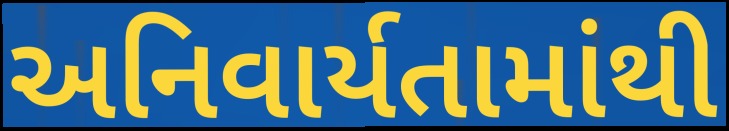
અનિવાર્યતામાંથી